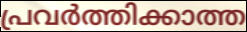
പ്രവർത്തിക്കാത്ത